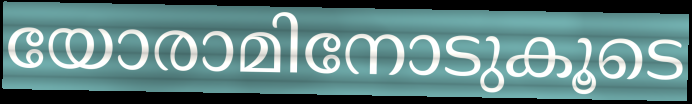
യോരാമിനോടുകൂടെ